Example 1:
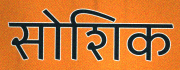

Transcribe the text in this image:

सोशिक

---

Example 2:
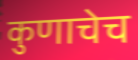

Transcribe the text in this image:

कुणाचेच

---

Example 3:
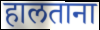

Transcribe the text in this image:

हालताना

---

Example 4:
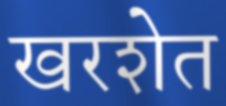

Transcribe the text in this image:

खरशेत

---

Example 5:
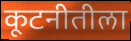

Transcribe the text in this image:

कूटनीतीला